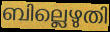
ബില്ലെഴുതി